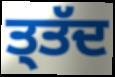
ਤ੍ਤੱਦ